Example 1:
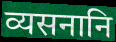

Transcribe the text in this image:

व्यसनानि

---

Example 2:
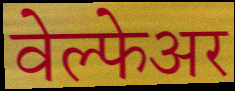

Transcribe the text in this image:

वेल्फेअर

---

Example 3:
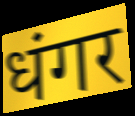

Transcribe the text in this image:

धंगर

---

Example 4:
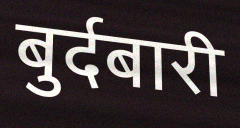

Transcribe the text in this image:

बुर्दबारी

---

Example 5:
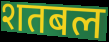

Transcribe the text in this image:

शतबल